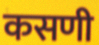
कसणी